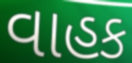
વાહક